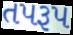
તપરૂપ